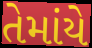
તેમાંયે